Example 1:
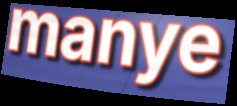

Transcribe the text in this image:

manye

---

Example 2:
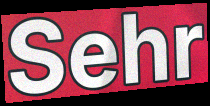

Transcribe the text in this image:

Sehr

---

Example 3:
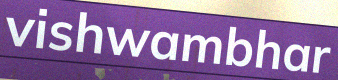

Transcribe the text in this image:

vishwambhar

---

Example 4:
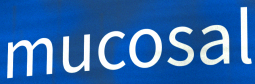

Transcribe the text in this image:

mucosal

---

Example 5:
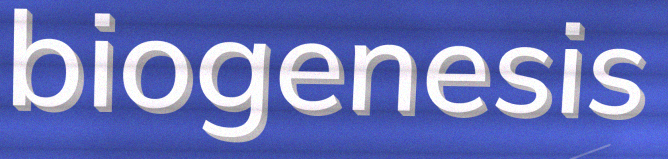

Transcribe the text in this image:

biogenesis